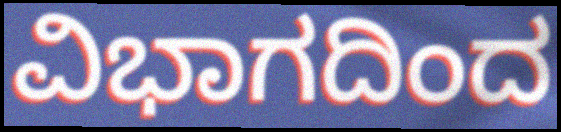
ವಿಭಾಗದಿಂದ